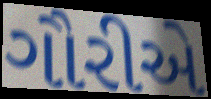
ગૌરીએ